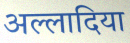
अल्लादिया